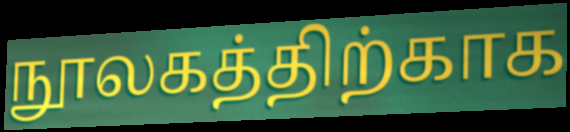
நூலகத்திற்காக